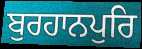
ਬੁਰਹਾਨਪੁਰਿ